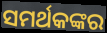
ସମର୍ଥକଙ୍କର